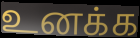
உனக்க